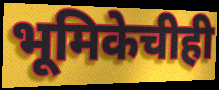
भूमिकेचीही